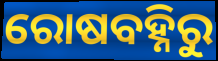
ରୋଷବହ୍ନିରୁ